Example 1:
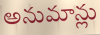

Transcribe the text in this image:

అనుమాన్లు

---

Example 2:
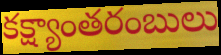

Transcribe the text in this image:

కక్ష్యాంతరంబులు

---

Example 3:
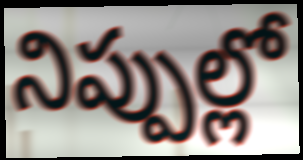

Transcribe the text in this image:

నిప్పుల్లో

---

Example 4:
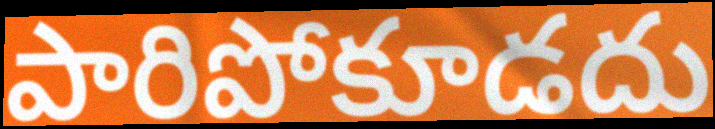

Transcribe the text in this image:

పారిపోకూడదు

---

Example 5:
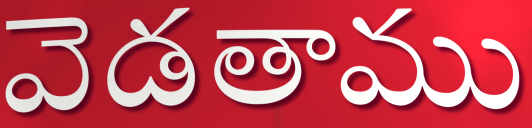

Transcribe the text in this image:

వెడతాము